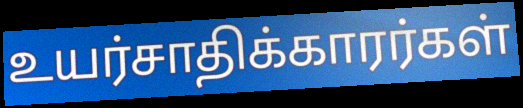
உயர்சாதிக்காரர்கள்